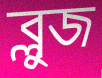
ব্লুজ